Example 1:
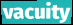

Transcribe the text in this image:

vacuity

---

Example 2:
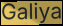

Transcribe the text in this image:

Galiya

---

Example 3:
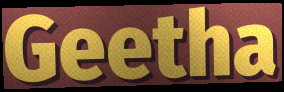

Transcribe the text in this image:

Geetha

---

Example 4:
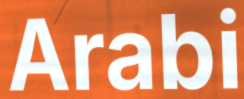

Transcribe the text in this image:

Arabi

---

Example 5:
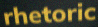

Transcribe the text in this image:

rhetoric